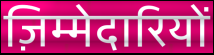
ज़िम्मेदारियों